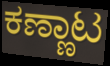
ಕಣ್ಣಾಟ